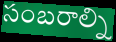
సంబరాల్ని